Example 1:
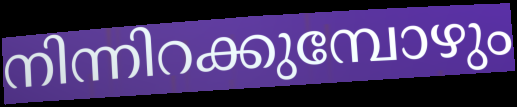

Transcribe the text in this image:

നിന്നിറക്കുമ്പോഴും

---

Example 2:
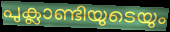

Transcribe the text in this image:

പുക്ലാണ്ടിയുടെയും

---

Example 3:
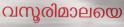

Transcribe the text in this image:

വസൂരിമാലയെ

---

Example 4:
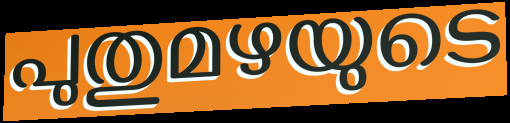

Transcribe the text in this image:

പുതുമഴയുടെ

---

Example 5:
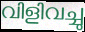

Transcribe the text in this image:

വിളിവച്ചു